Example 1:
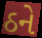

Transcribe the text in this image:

ઠને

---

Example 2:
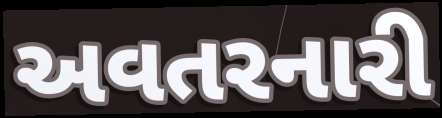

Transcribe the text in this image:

અવતરનારી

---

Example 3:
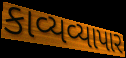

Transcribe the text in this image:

કાવ્યવ્યાપાર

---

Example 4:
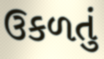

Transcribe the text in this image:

ઉકળતું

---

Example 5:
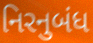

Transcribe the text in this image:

નિરનુબંધ